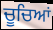
ਚੂਚਿਆਂ